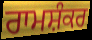
ਰਾਮਸ਼ੰਕਰ